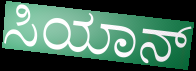
ಸಿಯಾನ್